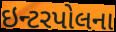
ઇન્ટરપોલના